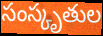
సంస్కృతుల